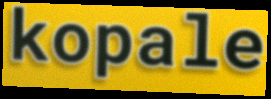
kopale